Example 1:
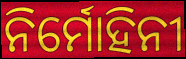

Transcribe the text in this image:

ନିର୍ମୋହିନୀ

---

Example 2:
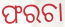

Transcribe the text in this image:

ଫରଚା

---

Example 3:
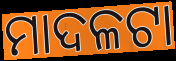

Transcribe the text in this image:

ମାଦଳଟା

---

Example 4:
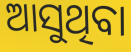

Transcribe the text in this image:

ଆସୁଥିବା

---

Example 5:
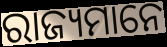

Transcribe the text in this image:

ରାଜ୍ୟମାନେ